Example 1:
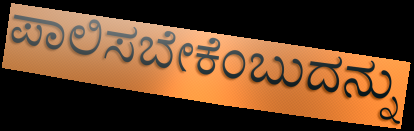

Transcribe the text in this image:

ಪಾಲಿಸಬೇಕೆಂಬುದನ್ನು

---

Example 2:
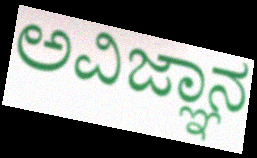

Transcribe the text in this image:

ಅವಿಜ್ಞಾನ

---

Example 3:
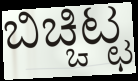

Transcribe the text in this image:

ಬಿಚ್ಚಿಟ್ಟ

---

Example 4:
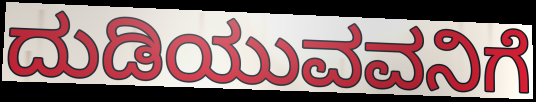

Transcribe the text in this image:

ದುಡಿಯುವವನಿಗೆ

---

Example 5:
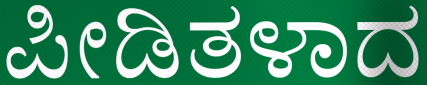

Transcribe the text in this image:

ಪೀಡಿತಳಾದ